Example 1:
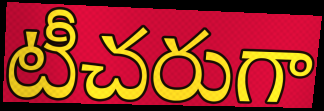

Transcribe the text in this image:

టీచరుగా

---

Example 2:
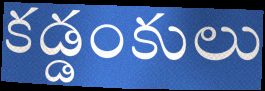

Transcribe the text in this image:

కడ్డంకులు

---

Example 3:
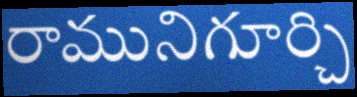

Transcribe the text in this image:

రామునిగూర్చి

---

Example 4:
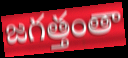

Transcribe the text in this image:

జగత్తంతా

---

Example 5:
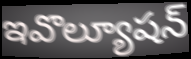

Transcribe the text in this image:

ఇవొల్యూషన్